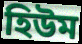
হিউম